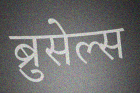
ब्रुसेल्स